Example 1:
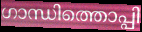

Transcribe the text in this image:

ഗാന്ധിത്തൊപ്പി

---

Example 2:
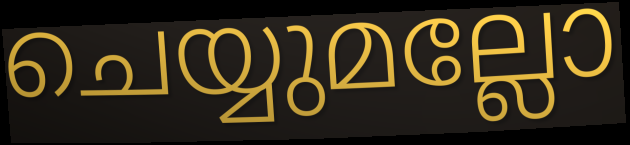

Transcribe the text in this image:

ചെയ്യുമല്ലോ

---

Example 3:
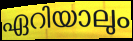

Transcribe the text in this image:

ഏറിയാലും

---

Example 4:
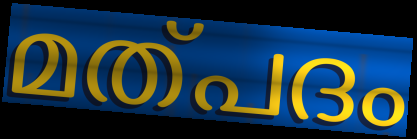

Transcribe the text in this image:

മത്പദം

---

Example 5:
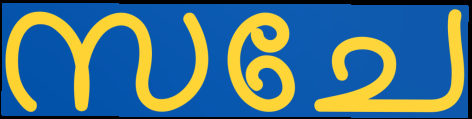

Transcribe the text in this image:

സചേ